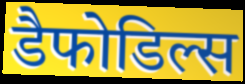
डैफोडिल्स